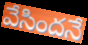
వేసిందనే